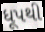
ધૂપથી